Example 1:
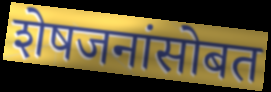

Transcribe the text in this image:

शेषजनांसोबत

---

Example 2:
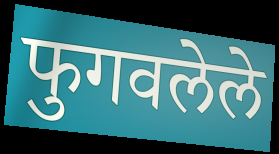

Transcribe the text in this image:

फुगवलेले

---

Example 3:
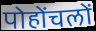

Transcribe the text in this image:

पोहोंचलों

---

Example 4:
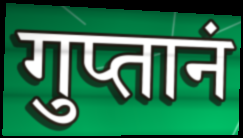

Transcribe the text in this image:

गुप्तानं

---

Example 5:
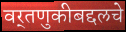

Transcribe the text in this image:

वर्तणुकीबद्दलचे